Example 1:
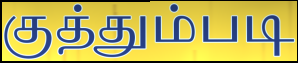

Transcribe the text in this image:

குத்தும்படி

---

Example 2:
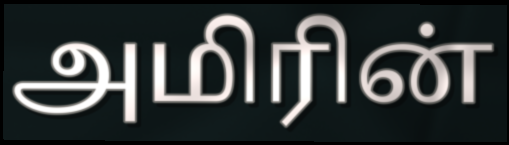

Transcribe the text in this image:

அமிரின்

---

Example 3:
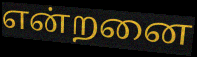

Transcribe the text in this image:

என்றனை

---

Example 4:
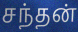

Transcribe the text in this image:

சந்தன்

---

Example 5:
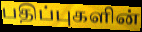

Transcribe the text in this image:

பதிப்புகளின்